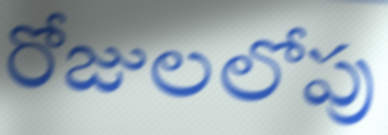
రోజులలోపు